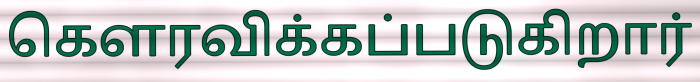
கௌரவிக்கப்படுகிறார்